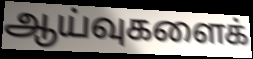
ஆய்வுகளைக்